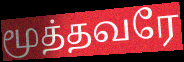
மூத்தவரே